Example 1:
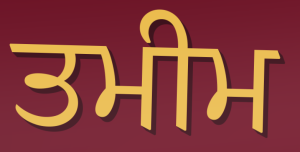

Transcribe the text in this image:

ਤਮੀਮ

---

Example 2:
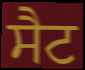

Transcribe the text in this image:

ਸੈਟ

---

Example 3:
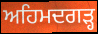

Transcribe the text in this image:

ਅਹਿਮਦਗੜ੍ਹ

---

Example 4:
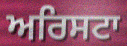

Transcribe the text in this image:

ਅਰਿਸਟਾ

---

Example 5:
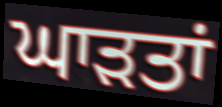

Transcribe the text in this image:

ਘਾਡ਼ਤਾਂ